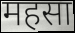
महसा